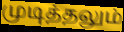
முடித்தலும்